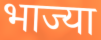
भाज्या